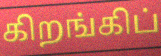
கிறங்கிப்